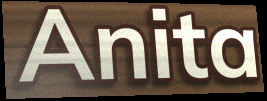
Anita